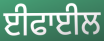
ਈਫਾਈਲ